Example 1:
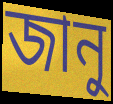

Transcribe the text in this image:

জানু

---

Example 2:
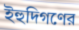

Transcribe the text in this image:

ইহুদিগণের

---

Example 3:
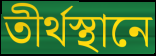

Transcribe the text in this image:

তীর্থস্থানে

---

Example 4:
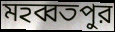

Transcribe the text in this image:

মহব্বতপুর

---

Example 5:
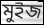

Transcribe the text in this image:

মুইজ